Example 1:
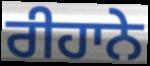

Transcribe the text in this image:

ਰੀਹਾਨੇ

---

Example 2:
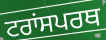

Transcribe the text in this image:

ਟਰਾਂਸਪਰਥ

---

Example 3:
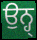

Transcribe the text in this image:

ਉਨ੍ਹ੍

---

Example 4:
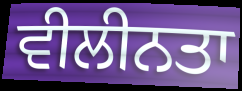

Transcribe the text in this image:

ਵੀਲੀਨਤਾ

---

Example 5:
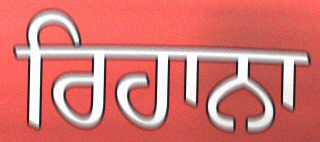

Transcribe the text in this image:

ਰਿਹਾਨਾ